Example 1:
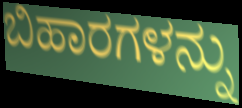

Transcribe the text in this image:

ಬಿಹಾರಗಳನ್ನು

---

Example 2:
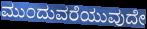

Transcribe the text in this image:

ಮುಂದುವರೆಯುವುದೇ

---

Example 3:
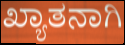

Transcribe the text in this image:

ಖ್ಯಾತನಾಗಿ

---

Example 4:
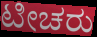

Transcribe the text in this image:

ಟೀಚರು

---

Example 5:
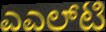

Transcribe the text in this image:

ಎಎಲ್‌ಟಿ